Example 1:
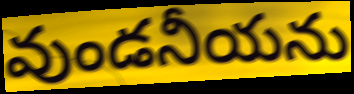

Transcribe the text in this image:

వుండనీయను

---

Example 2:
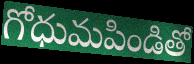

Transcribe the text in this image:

గోధుమపిండితో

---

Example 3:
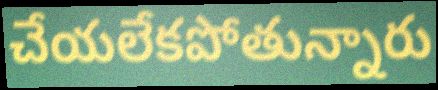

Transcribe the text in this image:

చేయలేకపోతున్నారు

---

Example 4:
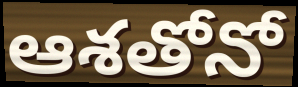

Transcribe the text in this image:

ఆశతోనో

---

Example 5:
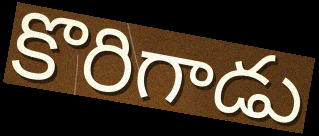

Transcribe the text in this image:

కొరిగాడు